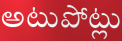
అటుపోట్లు